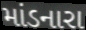
માંડનારા